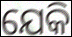
ଯେକି